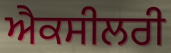
ਐਕਸੀਲਰੀ